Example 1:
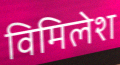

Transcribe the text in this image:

विमिलेश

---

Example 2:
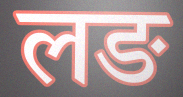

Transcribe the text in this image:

लङ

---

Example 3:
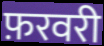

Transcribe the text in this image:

फ़रवरी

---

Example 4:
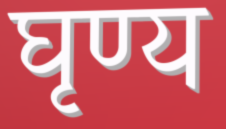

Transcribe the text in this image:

घृण्य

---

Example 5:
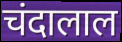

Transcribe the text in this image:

चंदालाल